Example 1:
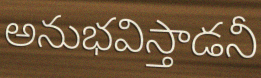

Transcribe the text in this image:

అనుభవిస్తాడనీ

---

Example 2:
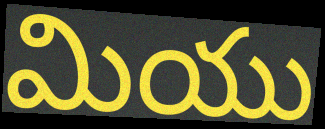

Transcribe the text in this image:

మియు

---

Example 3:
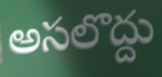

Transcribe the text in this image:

అసలొద్దు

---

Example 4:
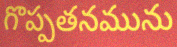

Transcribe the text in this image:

గొప్పతనమును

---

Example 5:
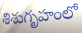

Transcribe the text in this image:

శిశుగృహంలో